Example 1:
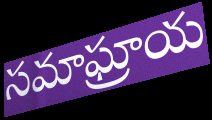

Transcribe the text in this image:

సమాఘ్రాయ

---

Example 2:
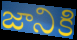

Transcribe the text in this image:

జానికి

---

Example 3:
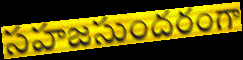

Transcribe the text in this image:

సహజసుందరంగా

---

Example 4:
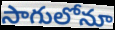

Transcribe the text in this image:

సాగులోనూ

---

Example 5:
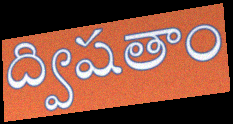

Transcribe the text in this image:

ద్విషతాం